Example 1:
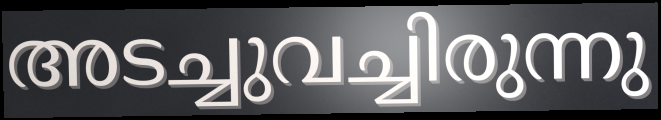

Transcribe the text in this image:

അടച്ചുവച്ചിരുന്നു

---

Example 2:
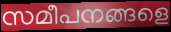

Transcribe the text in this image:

സമീപനങ്ങളെ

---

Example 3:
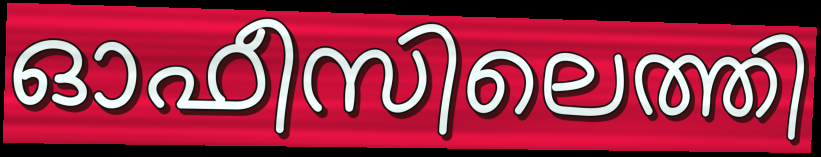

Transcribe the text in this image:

ഓഫീസിലെത്തി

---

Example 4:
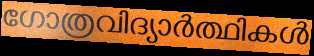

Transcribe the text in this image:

ഗോത്രവിദ്യാർത്ഥികൾ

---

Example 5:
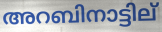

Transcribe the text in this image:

അറബിനാട്ടില്